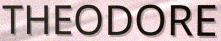
THEODORE